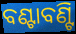
ବଣ୍ଟାବଣ୍ଟି